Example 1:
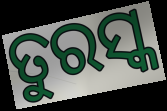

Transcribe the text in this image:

ତୁରସ୍କ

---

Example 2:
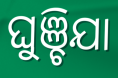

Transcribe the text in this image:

ଘୁଞ୍ଚିଯା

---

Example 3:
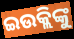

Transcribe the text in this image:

ଇଉକ୍ଲିଙ୍କୁ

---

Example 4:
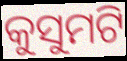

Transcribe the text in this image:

କୁସୁମଟି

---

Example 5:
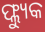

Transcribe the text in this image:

ଫ୍ଲ୍ୟୁକ